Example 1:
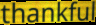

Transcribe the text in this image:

thankful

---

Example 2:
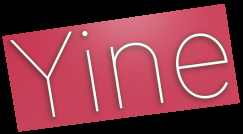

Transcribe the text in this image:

Yine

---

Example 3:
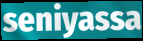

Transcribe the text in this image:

seniyassa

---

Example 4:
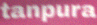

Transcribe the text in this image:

tanpura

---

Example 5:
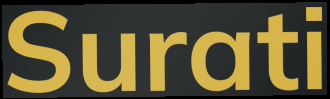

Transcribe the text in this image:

Surati